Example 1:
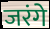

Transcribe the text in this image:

जरंगे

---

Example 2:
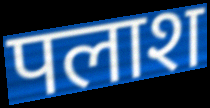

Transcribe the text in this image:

पलाश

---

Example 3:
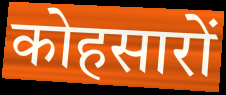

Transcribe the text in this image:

कोहसारों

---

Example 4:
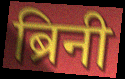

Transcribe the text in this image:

ब्रिनी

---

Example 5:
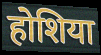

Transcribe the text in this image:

होशिया